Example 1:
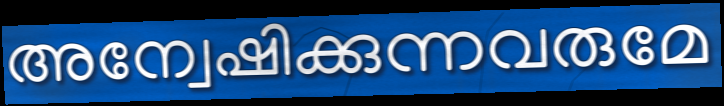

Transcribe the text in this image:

അന്വേഷിക്കുന്നവരുമേ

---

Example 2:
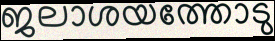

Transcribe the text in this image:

ജലാശയത്തോടു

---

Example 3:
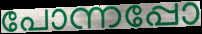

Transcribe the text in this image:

പോന്നപ്പോ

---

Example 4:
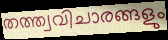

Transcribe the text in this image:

തത്ത്വവിചാരങ്ങളും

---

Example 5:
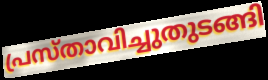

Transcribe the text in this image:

പ്രസ്താവിച്ചുതുടങ്ങി